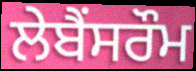
ਲੇਬੈਂਸਰੌਮ